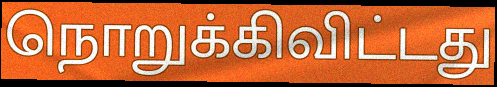
நொறுக்கிவிட்டது